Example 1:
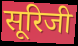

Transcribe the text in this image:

सूरिजी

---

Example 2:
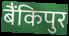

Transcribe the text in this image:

बैंकिपुर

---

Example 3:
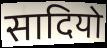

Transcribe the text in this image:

सादियो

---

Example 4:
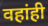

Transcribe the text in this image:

वहांही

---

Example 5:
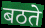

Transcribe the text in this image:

बठते